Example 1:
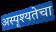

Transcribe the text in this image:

अस्पृश्यतेचा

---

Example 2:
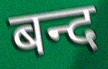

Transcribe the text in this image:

बन्द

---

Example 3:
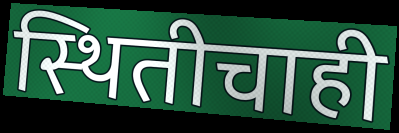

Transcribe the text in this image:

स्थितीचाही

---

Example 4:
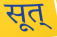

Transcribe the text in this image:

सूत्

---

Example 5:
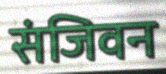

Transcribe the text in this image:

संजिवन